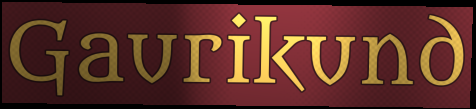
Gaurikund